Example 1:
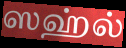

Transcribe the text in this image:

ஸஹ்ல்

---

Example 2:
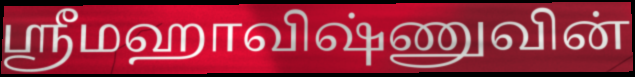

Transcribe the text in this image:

ஸ்ரீமஹாவிஷ்ணுவின்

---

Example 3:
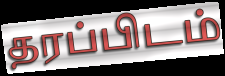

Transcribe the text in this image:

தரப்பிடம்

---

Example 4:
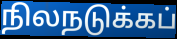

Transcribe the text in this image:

நிலநடுக்கப்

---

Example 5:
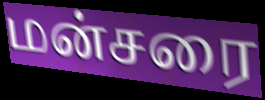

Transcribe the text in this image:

மன்சரை